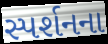
સ્પર્શનના